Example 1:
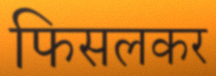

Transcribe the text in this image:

फिसलकर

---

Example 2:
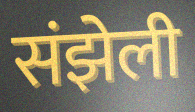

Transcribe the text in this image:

संझेली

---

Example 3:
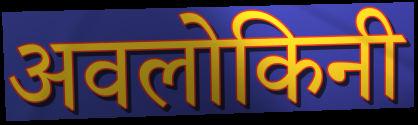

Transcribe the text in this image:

अवलोकिनी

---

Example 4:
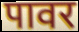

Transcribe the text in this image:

पावर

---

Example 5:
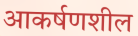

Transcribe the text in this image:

आकर्षणशील